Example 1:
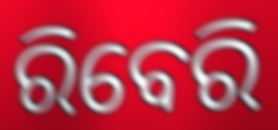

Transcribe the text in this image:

ରିବେରି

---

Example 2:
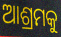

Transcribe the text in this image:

ଆଶ୍ରମକୁ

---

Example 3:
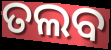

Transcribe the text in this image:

ତଲବ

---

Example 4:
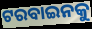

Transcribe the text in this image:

ଟରବାଇନକୁ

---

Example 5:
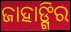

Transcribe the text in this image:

ଜାହାଙ୍ଗିର